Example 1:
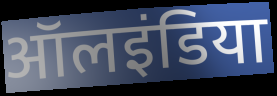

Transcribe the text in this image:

ऑलइंडिया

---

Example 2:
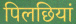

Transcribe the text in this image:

पिलछियां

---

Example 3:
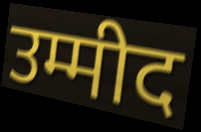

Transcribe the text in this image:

उम्‍मीद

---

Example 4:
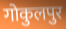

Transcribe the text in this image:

गोकुलपुर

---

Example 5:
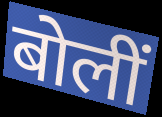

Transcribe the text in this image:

बोलीं